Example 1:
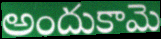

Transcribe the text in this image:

అందుకామె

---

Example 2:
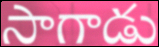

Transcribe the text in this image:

సాగాడు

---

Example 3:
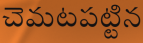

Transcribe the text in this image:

చెమటపట్టిన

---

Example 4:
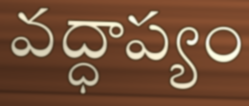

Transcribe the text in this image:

వద్ధాప్యం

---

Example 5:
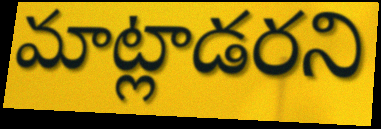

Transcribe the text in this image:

మాట్లాడరని